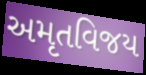
અમૃતવિજય